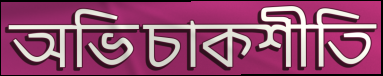
অভিচাকশীতি